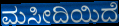
ಮಸೀದಿಯಿದೆ